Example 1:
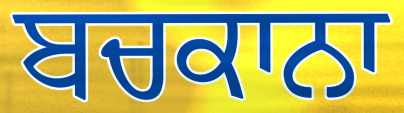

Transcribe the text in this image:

ਬਚਕਾਨਾ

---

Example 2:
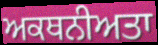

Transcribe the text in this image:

ਅਕਥਨੀਅਤਾ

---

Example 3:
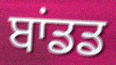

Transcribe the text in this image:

ਬਾਂਡਡ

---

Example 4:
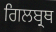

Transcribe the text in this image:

ਗਿਲਬ੍ਰਥ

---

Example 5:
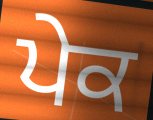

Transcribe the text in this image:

ਪੇਕ